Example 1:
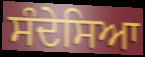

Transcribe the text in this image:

ਸੰਦੇਸਿਆ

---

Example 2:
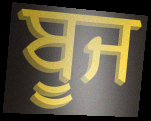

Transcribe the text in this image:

ਬੂਜ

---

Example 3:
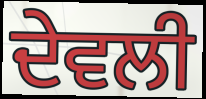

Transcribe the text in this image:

ਦੇਵਲੀ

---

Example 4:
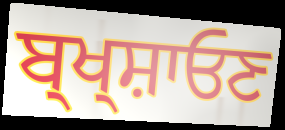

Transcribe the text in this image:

ਬ੍ਖ੍ਸ਼ਾਓਣ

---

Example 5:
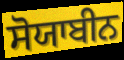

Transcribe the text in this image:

ਸੋਯਾਬੀਨ